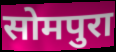
सोमपुरा